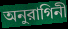
অনুরাগিনী